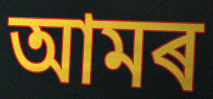
আমৰ